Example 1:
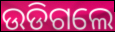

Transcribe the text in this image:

ଉଡିଗଲେ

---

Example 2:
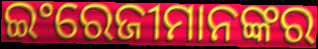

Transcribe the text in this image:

ଇଂରେଜୀମାନଙ୍କର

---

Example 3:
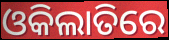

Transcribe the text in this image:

ଓକିଲାତିରେ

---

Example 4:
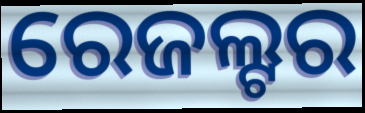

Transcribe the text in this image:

ରେଜଲ୍ଟର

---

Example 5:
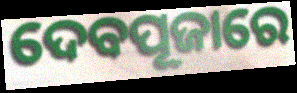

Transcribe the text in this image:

ଦେବପୂଜାରେ